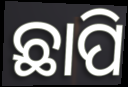
ଛାପି